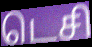
டெசி